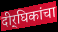
दीर्घिकांचा